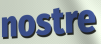
nostre